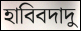
হাবিবদাদু